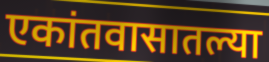
एकांतवासातल्या